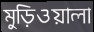
মুড়িওয়ালা